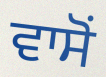
ਵਾਸੋਂ